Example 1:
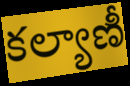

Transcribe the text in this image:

కల్యాణీ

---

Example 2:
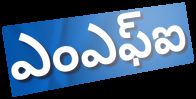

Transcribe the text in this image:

ఎంఎఫ్ఐ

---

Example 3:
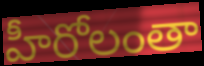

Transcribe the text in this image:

హీరోలంతా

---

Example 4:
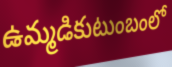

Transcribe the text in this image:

ఉమ్మడికుటుంబంలో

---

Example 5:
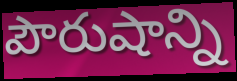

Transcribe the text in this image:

పౌరుషాన్ని